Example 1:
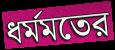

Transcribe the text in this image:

ধর্মমতের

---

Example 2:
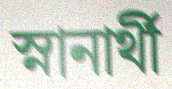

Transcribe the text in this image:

স্নানার্থী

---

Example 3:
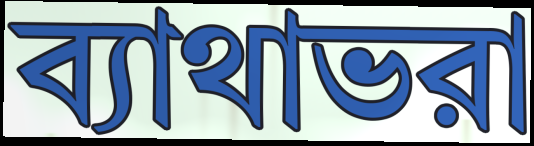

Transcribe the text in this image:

ব্যাথাভরা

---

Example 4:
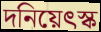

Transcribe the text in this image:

দনিয়েৎস্ক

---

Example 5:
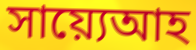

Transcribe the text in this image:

সায়্যেআহ